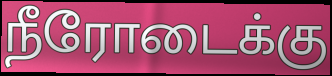
நீரோடைக்கு